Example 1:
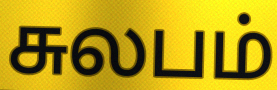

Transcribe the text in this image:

சுலபம்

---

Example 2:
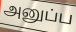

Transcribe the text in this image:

அனுப்ப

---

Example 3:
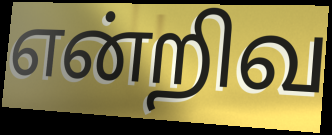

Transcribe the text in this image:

என்றிவ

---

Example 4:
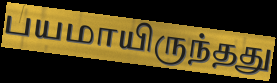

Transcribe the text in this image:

பயமாயிருந்தது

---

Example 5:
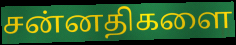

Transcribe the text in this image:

சன்னதிகளை